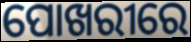
ପୋଖରୀରେ